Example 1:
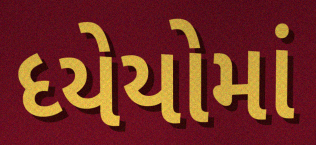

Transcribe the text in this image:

ધ્યેયોમાં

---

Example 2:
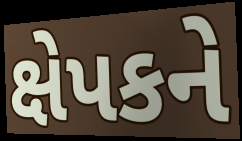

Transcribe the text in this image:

ક્ષેપકને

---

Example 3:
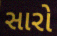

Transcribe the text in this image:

સારો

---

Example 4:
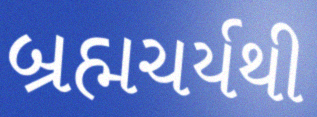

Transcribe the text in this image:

બ્રહ્મચર્યથી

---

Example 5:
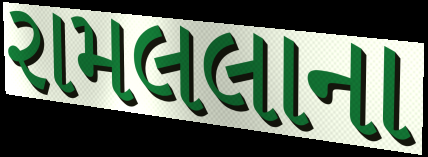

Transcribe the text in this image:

રામલલાના